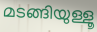
മടങ്ങിയുള്ളൂ